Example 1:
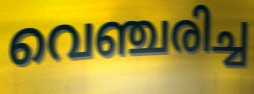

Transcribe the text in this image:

വെഞ്ചരിച്ച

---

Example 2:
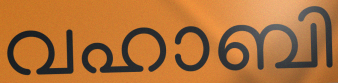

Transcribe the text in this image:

വഹാബി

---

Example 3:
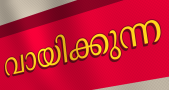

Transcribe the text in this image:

വായിക്കുന്ന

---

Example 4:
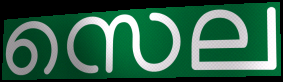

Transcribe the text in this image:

സെല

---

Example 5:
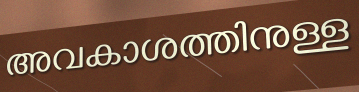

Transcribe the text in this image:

അവകാശത്തിനുള്ള